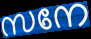
സനേ